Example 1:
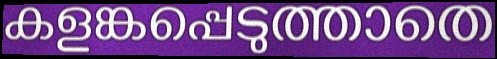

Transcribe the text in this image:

കളങ്കപ്പെടുത്താതെ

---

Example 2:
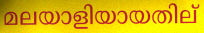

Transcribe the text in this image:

മലയാളിയായതില്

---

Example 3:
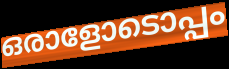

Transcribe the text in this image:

ഒരാളോടൊപ്പം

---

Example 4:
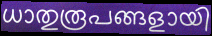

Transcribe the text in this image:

ധാതുരൂപങ്ങളായി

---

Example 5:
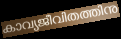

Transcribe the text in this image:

കാവ്യജീവിതത്തിനു